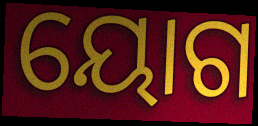
ୟୋଗ